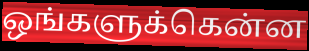
ஒங்களுக்கென்ன